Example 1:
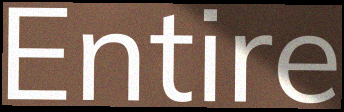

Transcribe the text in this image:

Entire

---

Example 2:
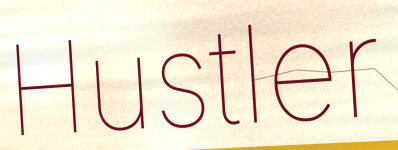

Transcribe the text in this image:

Hustler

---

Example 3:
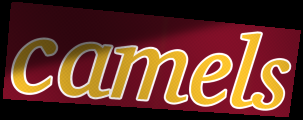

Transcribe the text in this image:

camels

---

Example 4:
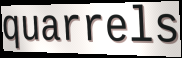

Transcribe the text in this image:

quarrels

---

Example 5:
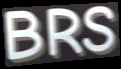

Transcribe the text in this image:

BRS